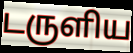
டருளிய